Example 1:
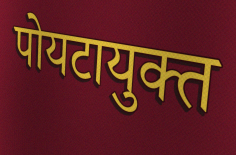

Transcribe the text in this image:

पोयटायुक्त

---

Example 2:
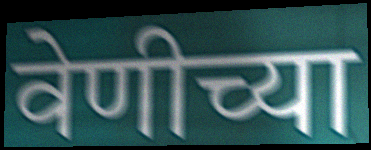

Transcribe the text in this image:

वेणीच्या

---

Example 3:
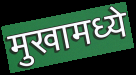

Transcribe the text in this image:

मुखामध्ये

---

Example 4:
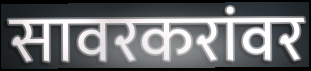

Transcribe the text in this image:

सावरकरांवर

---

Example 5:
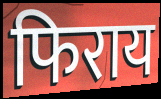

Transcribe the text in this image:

फिराय